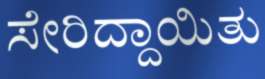
ಸೇರಿದ್ದಾಯಿತು